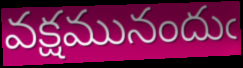
వక్షమునందుఁ